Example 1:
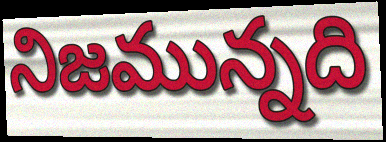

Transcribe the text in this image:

నిజమున్నది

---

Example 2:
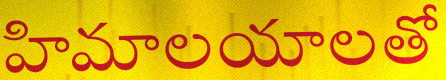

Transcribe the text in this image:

హిమాలయాలతో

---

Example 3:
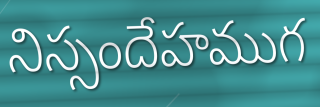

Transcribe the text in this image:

నిస్సందేహముగ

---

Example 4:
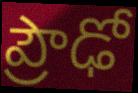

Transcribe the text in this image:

ప్రౌఢో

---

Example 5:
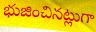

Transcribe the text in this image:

భుజించినట్లుగా